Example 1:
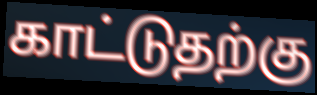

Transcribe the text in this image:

காட்டுதற்கு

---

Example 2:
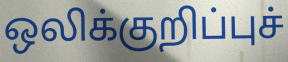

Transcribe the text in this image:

ஒலிக்குறிப்புச்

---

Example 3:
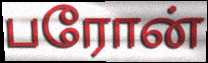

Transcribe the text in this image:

பரோன்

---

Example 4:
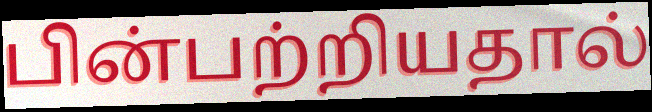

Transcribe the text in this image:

பின்பற்றியதால்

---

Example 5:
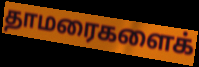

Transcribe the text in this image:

தாமரைகளைக்